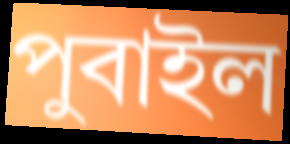
পুবাইল